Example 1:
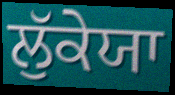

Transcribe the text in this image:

ਲੁੱਕੇਯਾ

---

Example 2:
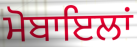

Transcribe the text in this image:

ਮੋਬਾਇਲਾਂ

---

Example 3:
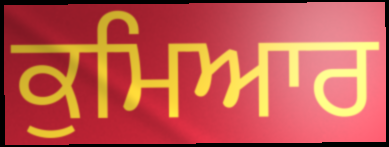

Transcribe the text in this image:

ਕੁਮਿਆਰ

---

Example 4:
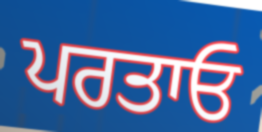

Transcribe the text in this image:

ਪਰਤਾਓ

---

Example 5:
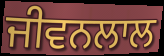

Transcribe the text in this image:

ਜੀਵਨਲਾਲ